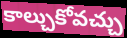
కాల్చుకోవచ్చు